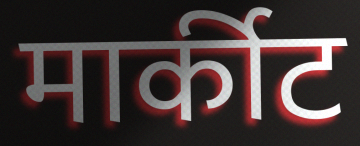
मार्कीट